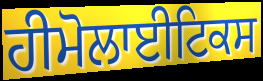
ਹੀਮੋਲਾਈਟਿਕਸ